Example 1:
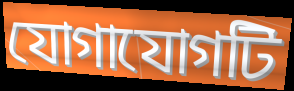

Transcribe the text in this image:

যোগাযোগটি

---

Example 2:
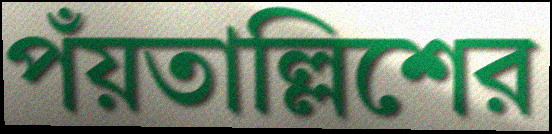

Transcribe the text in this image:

পঁয়তাল্লিশের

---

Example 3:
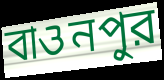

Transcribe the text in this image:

বাওনপুর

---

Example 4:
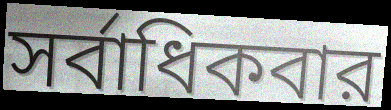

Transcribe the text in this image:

সর্বাধিকবার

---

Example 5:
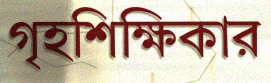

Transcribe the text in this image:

গৃহশিক্ষিকার